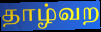
தாழ்வற